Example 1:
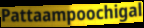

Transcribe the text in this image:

Pattaampoochigal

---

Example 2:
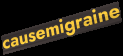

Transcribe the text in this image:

causemigraine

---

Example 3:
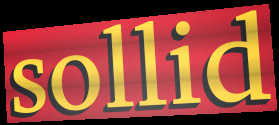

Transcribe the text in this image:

sollid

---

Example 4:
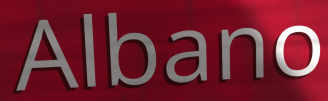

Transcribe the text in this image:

Albano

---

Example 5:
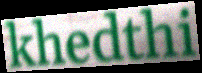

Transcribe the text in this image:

khedthi